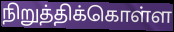
நிறுத்திக்கொள்ள